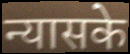
न्यासके